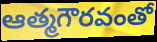
ఆత్మగౌరవంతో